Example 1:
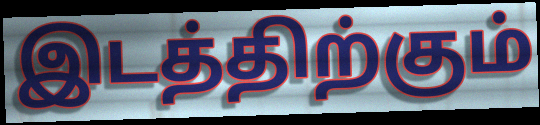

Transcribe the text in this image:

இடத்திற்கும்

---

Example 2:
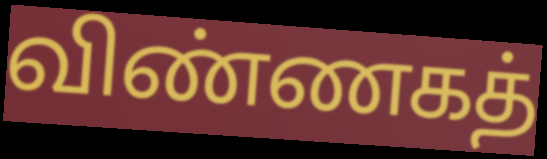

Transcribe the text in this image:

விண்ணகத்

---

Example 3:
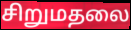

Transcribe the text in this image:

சிறுமதலை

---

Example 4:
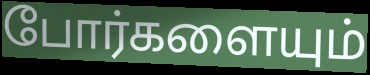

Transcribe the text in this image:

போர்களையும்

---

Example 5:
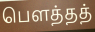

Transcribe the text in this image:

பௌத்தத்